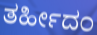
ತರ್ಹೀದಂ